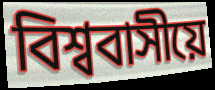
বিশ্ববাসীয়ে